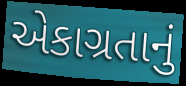
એકાગ્રતાનું